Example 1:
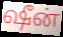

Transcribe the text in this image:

ஷீன்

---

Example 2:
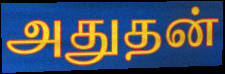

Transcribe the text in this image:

அதுதன்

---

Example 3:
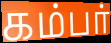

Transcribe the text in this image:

கம்பர்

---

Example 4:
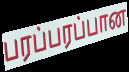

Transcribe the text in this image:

பரப்பரப்பான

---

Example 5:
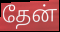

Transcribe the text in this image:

தேன்